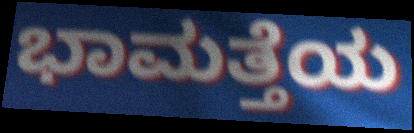
ಭಾಮತ್ತೆಯ